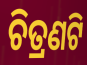
ଚିତ୍ରଣଟି